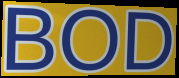
BOD